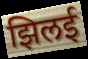
झिलई